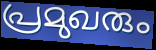
പ്രമുഖരും